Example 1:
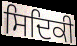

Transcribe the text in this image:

ਸਿਦਿਕੀ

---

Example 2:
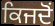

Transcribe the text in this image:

ਕਿਜਦੋਂ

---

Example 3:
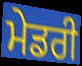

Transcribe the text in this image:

ਮੇਡਰੀ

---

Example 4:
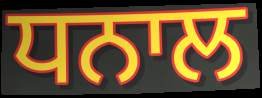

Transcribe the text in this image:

ਧਨਾਲ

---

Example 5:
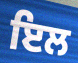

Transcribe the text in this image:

ਇਲ